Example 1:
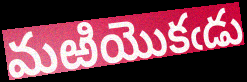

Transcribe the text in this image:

మఱియొకఁడు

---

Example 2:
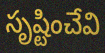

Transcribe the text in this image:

సృష్టించేవి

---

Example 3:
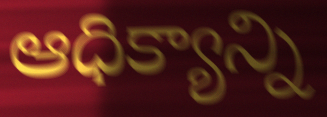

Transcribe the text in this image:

ఆధిక్యాన్ని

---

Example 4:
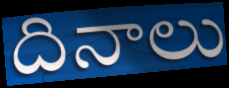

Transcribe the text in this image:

దినాలు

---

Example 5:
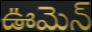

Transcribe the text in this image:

ఊమెన్